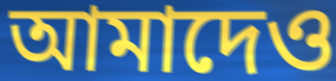
আমাদেও